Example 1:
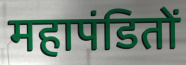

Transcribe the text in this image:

महापंडितों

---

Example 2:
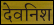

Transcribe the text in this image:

देवनिश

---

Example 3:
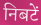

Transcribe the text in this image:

निबटें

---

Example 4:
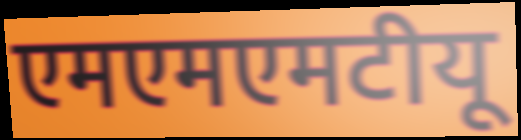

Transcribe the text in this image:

एमएमएमटीयू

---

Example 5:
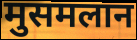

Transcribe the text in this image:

मुसमलान